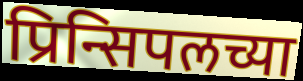
प्रिन्सिपलच्या